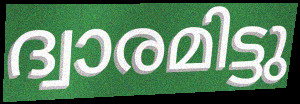
ദ്വാരമിട്ടു